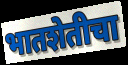
भातशेतीचा